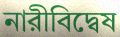
নারীবিদ্বেষ